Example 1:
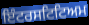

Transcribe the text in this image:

ਇੰਟਰਸਟਿਟਿਅਮ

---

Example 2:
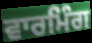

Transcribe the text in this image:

ਵਾਰਮਿੰਗ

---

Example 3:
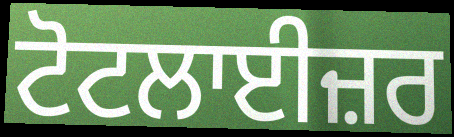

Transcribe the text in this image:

ਟੋਟਲਾਈਜ਼ਰ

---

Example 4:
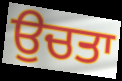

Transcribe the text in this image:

ਉਚਤਾ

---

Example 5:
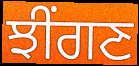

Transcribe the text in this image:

ਝੀਂਗਣ